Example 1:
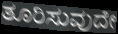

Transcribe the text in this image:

ತೂರಿಸುವುದೇ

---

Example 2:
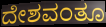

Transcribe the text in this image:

ದೇಶವಂತೂ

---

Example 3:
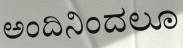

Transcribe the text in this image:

ಅಂದಿನಿಂದಲೂ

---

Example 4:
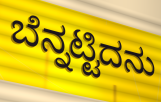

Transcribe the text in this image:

ಬೆನ್ನಟ್ಟಿದನು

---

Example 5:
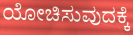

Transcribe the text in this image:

ಯೋಚಿಸುವುದಕ್ಕೆ